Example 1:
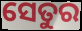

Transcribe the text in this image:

ସେତୁର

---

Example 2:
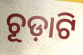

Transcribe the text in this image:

ଚୂଡ଼ାଟି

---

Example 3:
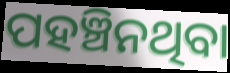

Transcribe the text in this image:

ପହଞ୍ଚିନଥିବା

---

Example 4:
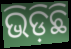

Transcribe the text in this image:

ଭିଡ଼ିଛି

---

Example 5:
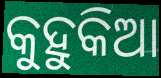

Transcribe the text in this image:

କୁହୁକିଆ